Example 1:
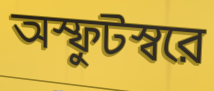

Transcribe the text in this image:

অস্ফুটস্বরে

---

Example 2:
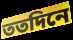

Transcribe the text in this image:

ততদিনে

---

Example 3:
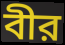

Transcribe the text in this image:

বীর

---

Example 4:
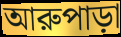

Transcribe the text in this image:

আরুপাড়া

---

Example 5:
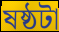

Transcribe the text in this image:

ষষ্ঠটা